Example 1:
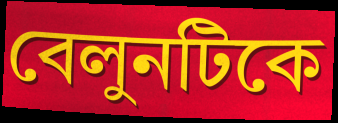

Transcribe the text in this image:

বেলুনটিকে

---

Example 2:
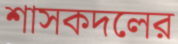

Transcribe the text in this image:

শাসকদলের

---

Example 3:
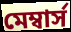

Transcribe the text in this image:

মেম্বার্স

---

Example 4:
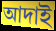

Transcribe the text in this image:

আদাই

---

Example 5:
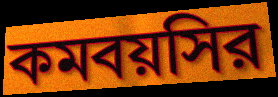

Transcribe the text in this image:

কমবয়সির